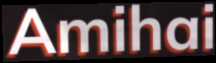
Amihai